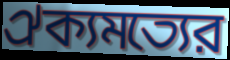
ঐক্যমত্যের